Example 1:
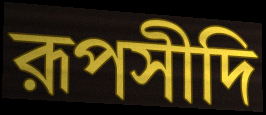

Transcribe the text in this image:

রূপসীদি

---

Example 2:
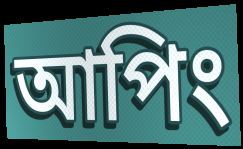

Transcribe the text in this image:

আপিং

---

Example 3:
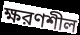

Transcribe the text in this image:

ক্ষরণশীল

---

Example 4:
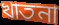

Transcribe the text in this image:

খাতনা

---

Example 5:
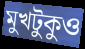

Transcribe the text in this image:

মুখটুকুও